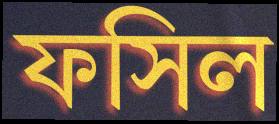
ফসিল